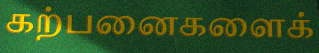
கற்பனைகளைக்